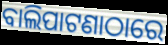
ବାଲିପାଟଣାଠାରେ